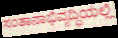
ಸಂತಾನಾಭಿವೃದ್ಧಿಯಲ್ಲಿ